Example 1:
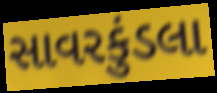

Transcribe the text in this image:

સાવરકુંડલા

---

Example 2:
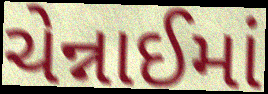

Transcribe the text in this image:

ચેન્નાઈમાં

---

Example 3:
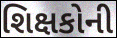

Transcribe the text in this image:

શિક્ષકોની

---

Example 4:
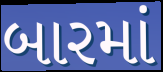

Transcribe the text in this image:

બારમાં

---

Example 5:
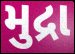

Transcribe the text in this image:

મુદ્રા